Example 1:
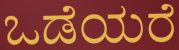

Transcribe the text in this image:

ಒಡೆಯರೆ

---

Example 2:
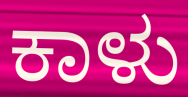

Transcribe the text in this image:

ಕಾಳು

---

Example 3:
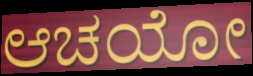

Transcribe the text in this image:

ಆಚಯೋ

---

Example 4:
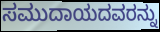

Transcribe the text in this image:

ಸಮುದಾಯದವರನ್ನು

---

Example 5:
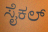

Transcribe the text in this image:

ಸೈಕಲ್